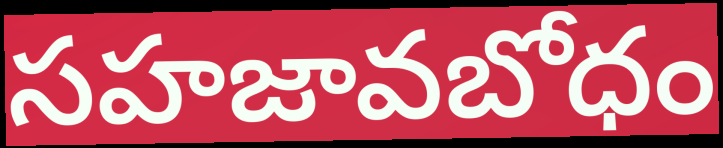
సహజావబోధం